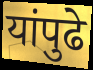
यांपुढे